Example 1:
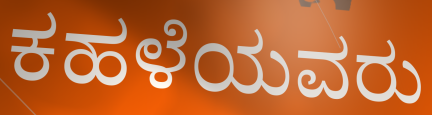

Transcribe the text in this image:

ಕಹಳೆಯವರು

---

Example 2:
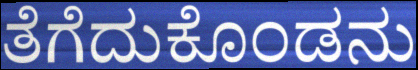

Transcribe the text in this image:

ತೆಗೆದುಕೊಂಡನು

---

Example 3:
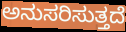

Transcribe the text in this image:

ಅನುಸರಿಸುತ್ತದೆ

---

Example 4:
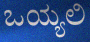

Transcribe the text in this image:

ಒಯ್ಯಲಿ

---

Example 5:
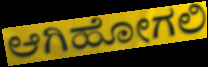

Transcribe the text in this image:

ಆಗಿಹೋಗಲಿ